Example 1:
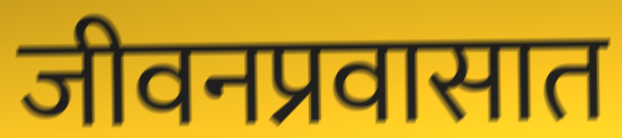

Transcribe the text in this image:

जीवनप्रवासात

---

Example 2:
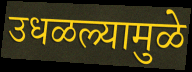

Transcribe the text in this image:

उधळल्यामुळे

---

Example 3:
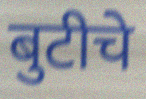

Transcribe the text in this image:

बुटीचे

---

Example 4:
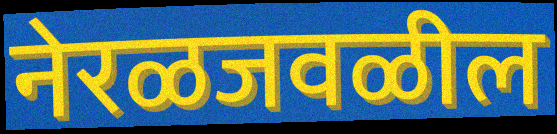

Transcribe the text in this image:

नेरळजवळील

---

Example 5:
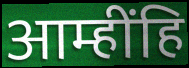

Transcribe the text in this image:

आम्हींहि